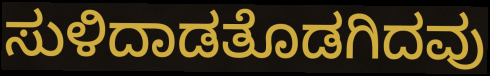
ಸುಳಿದಾಡತೊಡಗಿದವು